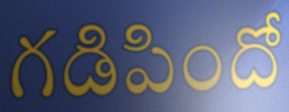
గడిపిందో